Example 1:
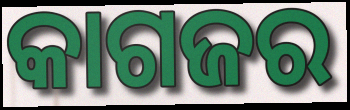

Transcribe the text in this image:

କାଗଜର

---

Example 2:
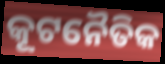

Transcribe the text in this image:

କୂଟନୈତିକ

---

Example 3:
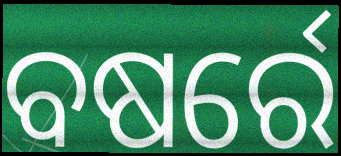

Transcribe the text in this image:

ବଷର୍ରେ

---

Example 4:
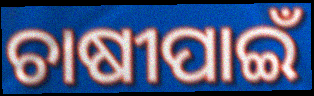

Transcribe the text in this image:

ଚାଷୀପାଇଁ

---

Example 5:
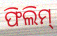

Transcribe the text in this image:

ଫିଲିମ୍